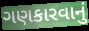
ગણકારવાનું